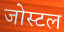
जोस्टल